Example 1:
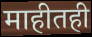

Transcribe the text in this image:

माहीतही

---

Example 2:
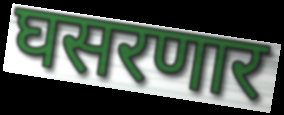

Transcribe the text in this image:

घसरणार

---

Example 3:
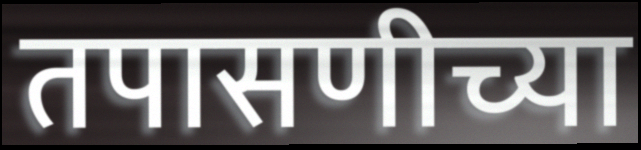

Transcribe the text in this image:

तपासणीच्या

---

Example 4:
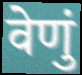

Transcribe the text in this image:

वेणुं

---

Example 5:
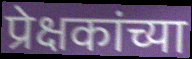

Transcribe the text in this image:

प्रेक्षकांच्या